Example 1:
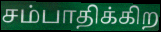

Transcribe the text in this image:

சம்பாதிக்கிற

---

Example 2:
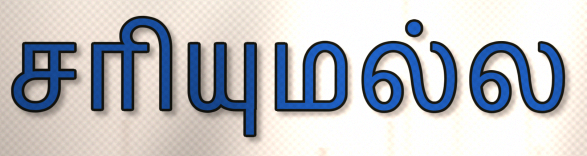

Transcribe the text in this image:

சரியுமல்ல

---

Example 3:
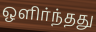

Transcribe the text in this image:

ஒளிர்ந்தது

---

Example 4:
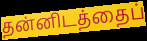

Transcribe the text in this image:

தன்னிடத்தைப்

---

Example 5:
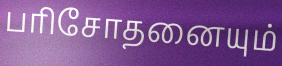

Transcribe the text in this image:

பரிசோதனையும்